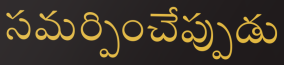
సమర్పించేప్పుడు